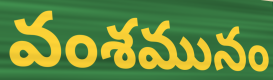
వంశమునం